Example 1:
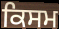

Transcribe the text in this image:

ਕਿਸਮ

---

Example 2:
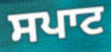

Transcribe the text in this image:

ਸਪਾਟ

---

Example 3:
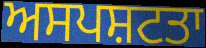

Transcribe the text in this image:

ਅਸਪਸ਼ਟਤਾ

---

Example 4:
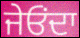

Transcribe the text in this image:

ਜੇਓੰਦਾ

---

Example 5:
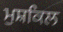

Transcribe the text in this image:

ਮੁਸ਼ਕਿਲ